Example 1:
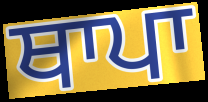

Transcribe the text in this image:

ਥਾਪਾ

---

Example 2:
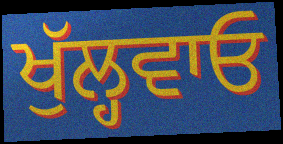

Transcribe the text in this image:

ਖੁੱਲ੍ਹਵਾਓ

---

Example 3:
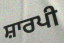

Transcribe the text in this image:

ਸ਼ਾਰਪੀ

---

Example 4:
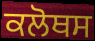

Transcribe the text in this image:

ਕਲੋਥਸ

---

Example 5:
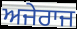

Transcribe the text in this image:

ਅਜੇਰਾਜ